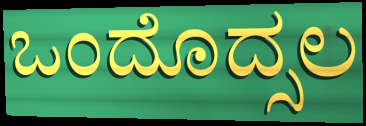
ಒಂದೊದ್ಸಲ